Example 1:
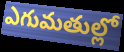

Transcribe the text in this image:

ఎగుమతుల్లో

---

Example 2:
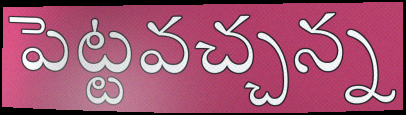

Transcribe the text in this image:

పెట్టవచ్చన్న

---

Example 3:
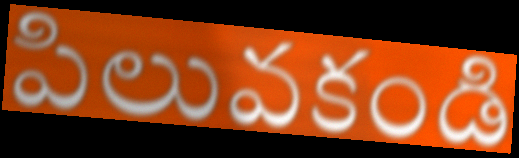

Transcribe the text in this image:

పిలువకండి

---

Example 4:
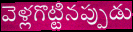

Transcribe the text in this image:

వెళ్లగొట్టినప్పుడు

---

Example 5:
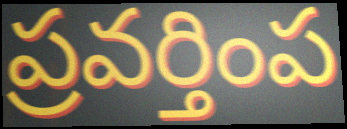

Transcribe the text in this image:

ప్రవర్తింప